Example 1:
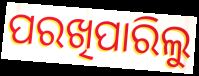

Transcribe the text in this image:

ପରଖିପାରିଲୁ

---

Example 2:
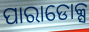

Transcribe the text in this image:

ପାରାଡୋକ୍ସ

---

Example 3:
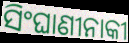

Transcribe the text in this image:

ସିଂଘାଣୀନାକୀ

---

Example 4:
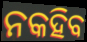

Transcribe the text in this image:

ନକହିବ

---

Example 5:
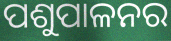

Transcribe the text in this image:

ପଶୁପାଳନର